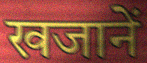
खजानें